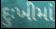
દુઃખીમાં